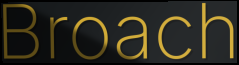
Broach